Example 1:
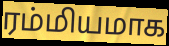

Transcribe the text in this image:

ரம்மியமாக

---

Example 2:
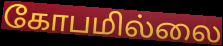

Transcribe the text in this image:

கோபமில்லை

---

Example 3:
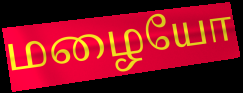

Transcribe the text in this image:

மழையோ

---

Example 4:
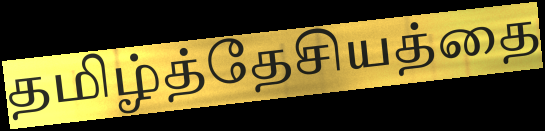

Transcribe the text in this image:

தமிழ்த்தேசியத்தை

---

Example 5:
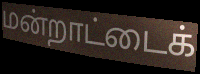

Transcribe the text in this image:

மன்றாட்டைக்